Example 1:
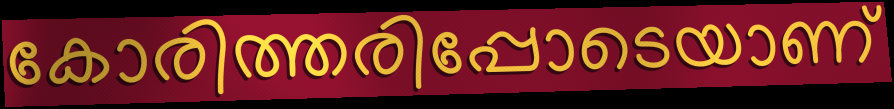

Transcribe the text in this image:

കോരിത്തരിപ്പോടെയാണ്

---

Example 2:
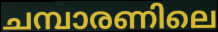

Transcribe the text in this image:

ചമ്പാരണിലെ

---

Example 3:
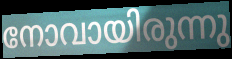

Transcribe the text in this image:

നോവായിരുന്നു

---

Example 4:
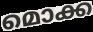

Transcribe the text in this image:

മൊക്ക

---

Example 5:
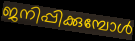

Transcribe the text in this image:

ജനിപ്പിക്കുമ്പോൾ